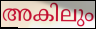
അകിലും